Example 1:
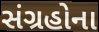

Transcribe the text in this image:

સંગ્રહોના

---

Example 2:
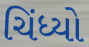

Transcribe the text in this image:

ચિંધ્યો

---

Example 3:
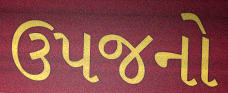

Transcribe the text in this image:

ઉપજનો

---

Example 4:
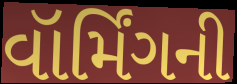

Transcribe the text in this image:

વૉર્મિંગની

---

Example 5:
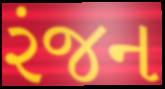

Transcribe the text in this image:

રંજન